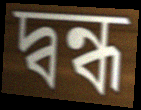
দ্বন্ধ